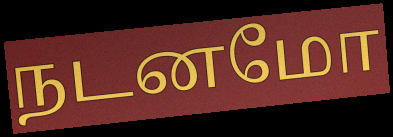
நடனமோ